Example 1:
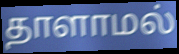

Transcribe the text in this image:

தாளாமல்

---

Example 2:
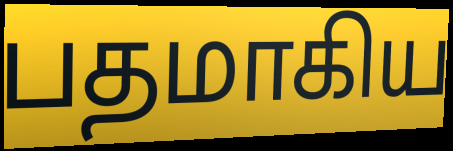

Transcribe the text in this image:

பதமாகிய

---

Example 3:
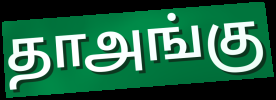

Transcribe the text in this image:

தாஅங்கு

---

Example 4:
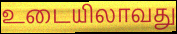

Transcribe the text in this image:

உடையிலாவது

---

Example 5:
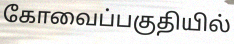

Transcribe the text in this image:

கோவைப்பகுதியில்